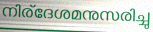
നിര്ദേശമനുസരിച്ചു